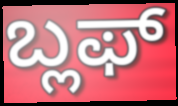
ಬ್ಲಫ್